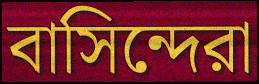
বাসিন্দেরা